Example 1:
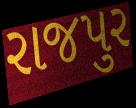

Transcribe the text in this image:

રાજપુર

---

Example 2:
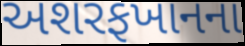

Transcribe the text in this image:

અશરફખાનના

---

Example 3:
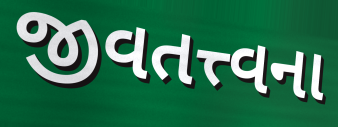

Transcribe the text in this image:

જીવતત્ત્વના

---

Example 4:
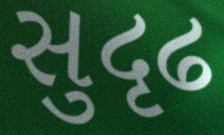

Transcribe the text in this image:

સુદૃઢ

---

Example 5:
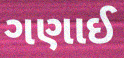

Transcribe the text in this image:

ગણાઈ